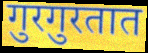
गुरगुरतात